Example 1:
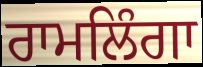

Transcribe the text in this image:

ਰਾਮਲਿੰਗਾ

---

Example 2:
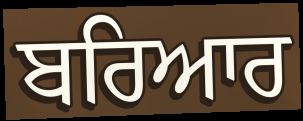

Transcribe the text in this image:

ਬਰਿਆਰ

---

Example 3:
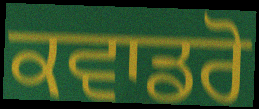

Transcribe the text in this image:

ਕਵਾਡਰੋ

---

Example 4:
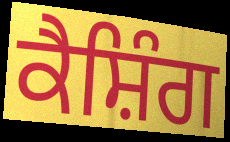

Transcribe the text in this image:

ਕੈਸ਼ਿੰਗ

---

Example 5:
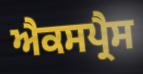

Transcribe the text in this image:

ਐਕਸਪ੍ਰੈਸ